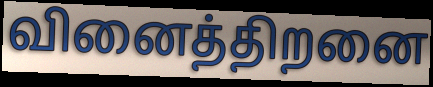
வினைத்திறனை